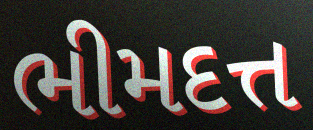
ભીમદત્ત